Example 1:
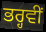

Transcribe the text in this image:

ਭਰ੍ਹਵੀਂ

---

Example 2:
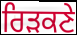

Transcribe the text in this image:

ਰਿੜਕਣੇ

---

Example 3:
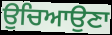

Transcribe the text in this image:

ਉਚਿਆਉਣਾ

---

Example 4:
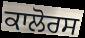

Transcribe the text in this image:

ਕਾਲੋਰਸ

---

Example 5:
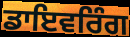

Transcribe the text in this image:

ਡਾਇਵਰਿੰਗ